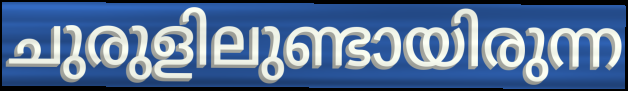
ചുരുളിലുണ്ടായിരുന്ന